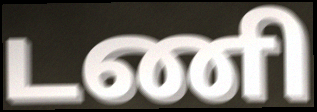
டணி